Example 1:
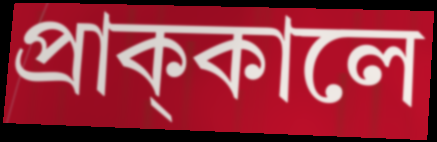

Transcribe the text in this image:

প্রাক্‌কালে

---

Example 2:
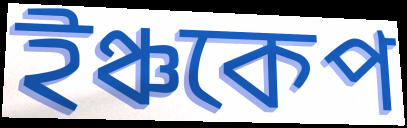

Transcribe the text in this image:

ইঞ্চকেপ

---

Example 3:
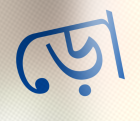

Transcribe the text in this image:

ড়ো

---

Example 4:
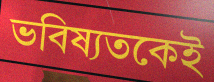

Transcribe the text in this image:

ভবিষ্যতকেই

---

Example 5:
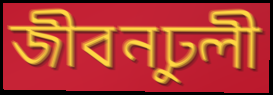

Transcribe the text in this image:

জীবনঢুলী